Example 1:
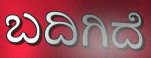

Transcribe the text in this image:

ಬದಿಗಿದೆ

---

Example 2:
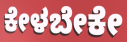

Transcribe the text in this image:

ಕೇಳಬೇಕೇ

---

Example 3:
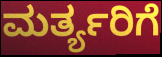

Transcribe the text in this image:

ಮರ್ತ್ಯರಿಗೆ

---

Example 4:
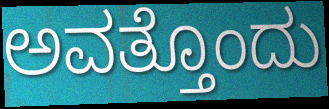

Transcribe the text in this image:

ಅವತ್ತೊಂದು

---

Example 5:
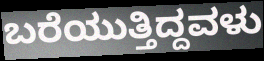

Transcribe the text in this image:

ಬರೆಯುತ್ತಿದ್ದವಳು